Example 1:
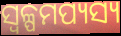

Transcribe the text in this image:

ସ୍ୱଳ୍ପମପ୍ୟସ୍ୟ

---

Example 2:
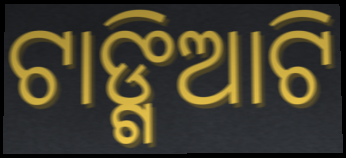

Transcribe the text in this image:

ଟାଙ୍ଗିଆଟି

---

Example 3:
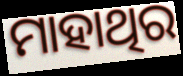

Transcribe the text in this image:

ମାହାଥିର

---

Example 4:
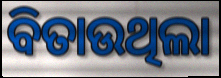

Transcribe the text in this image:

ବିତାଉଥିଲା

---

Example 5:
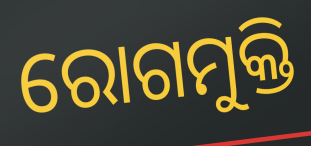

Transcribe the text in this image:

ରୋଗମୁକ୍ତି